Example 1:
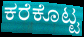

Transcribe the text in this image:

ಕರೆಕೊಟ್ಟ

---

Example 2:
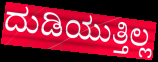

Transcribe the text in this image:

ದುಡಿಯುತ್ತಿಲ್ಲ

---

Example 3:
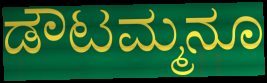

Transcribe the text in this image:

ಡೌಟಮ್ಮನೂ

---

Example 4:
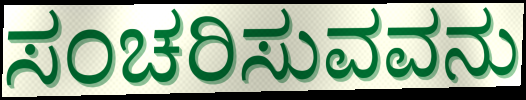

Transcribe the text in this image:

ಸಂಚರಿಸುವವನು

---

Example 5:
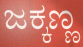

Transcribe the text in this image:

ಜಕ್ಕಣ್ಣ